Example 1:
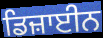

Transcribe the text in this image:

ਡਿਜ਼ਾਈਨ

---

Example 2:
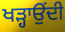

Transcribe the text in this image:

ਖੜ੍ਹਾਉਂਦੀ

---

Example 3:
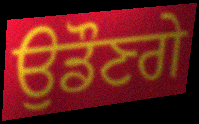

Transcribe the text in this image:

ਉਡੌਣਗੇ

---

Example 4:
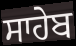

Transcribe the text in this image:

ਸਾਹੇਬ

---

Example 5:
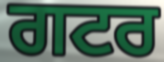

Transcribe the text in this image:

ਗਟਰ